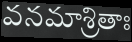
వనమాశ్రితాః